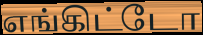
எங்கிட்டோ